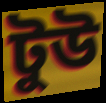
টুউ